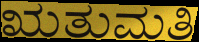
ಋತುಮತಿ